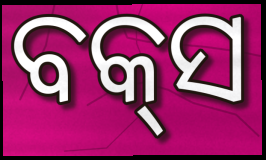
ବକ୍‍ସ